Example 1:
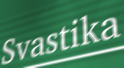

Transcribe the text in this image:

Svastika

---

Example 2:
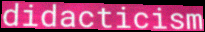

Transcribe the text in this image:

didacticism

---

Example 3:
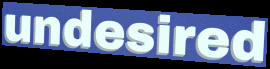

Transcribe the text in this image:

undesired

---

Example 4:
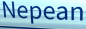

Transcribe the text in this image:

Nepean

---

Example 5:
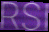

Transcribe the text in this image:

RSI